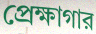
প্রেক্ষাগার